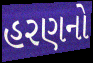
હરણનો